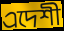
এদেশী